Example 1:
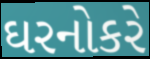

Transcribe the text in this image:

ઘરનોકરે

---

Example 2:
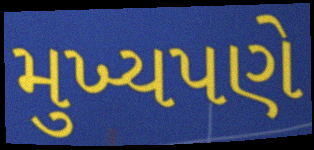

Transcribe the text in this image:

મુખ્યપણે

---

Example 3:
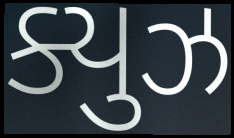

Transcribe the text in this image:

ક્યુઝ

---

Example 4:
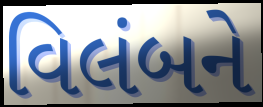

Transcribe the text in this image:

વિલંબને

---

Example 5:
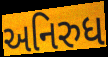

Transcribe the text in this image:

અનિરુધ